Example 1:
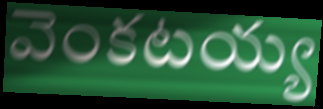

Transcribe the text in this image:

వెంకటయ్య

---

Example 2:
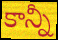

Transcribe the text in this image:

కాన్నీ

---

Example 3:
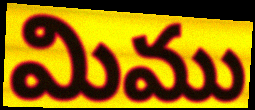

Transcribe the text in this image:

మిము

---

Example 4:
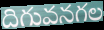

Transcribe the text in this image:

దిగువనగల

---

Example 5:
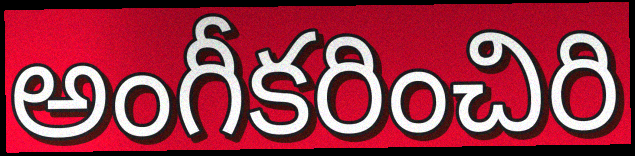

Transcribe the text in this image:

అంగీకరించిరి